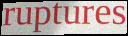
ruptures